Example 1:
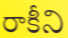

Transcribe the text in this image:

రాకీని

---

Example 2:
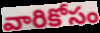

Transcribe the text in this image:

వారికోసం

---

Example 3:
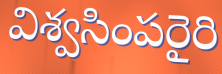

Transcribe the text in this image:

విశ్వసింపరైరి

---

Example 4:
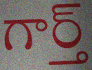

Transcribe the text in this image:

గార్త్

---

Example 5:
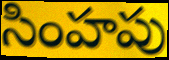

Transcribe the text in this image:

సింహపు